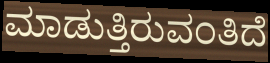
ಮಾಡುತ್ತಿರುವಂತಿದೆ